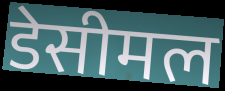
डेसीमल